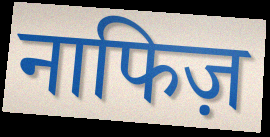
नाफिज़